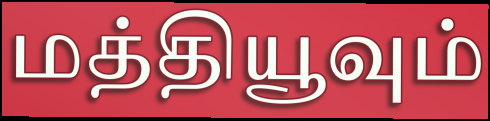
மத்தியூவும்